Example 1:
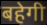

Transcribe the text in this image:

बहेगी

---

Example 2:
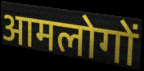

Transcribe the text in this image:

आमलोगों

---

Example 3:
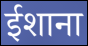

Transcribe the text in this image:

ईशाना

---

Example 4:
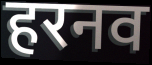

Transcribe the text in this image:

हरनव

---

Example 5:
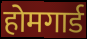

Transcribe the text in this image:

होमगार्ड